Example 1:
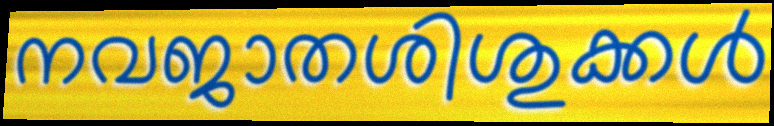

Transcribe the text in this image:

നവജാതശിശുക്കൾ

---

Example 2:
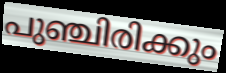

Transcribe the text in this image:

പുഞ്ചിരിക്കും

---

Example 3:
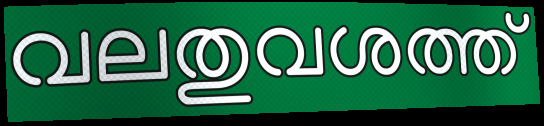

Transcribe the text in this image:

വലതുവശത്ത്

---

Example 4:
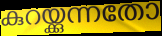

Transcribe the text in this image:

കുറയ്ക്കുന്നതോ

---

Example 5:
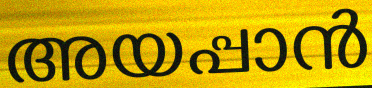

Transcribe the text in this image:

അയപ്പാൻ